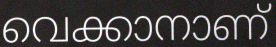
വെക്കാനാണ്